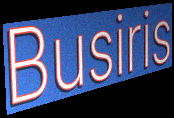
Busiris